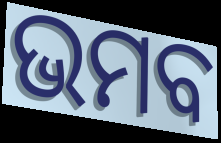
ଭମବ